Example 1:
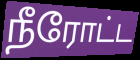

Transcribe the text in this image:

நீரோட்ட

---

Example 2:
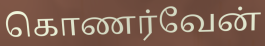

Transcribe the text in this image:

கொணர்வேன்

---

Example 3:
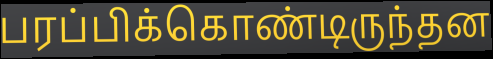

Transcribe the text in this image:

பரப்பிக்கொண்டிருந்தன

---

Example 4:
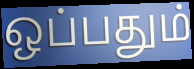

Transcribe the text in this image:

ஒப்பதும்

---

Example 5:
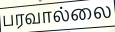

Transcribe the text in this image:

பரவால்லை